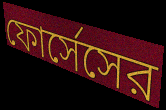
ফোর্সেসের